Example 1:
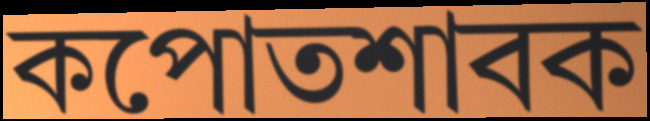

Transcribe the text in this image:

কপোতশাবক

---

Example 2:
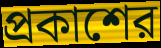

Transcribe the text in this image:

প্রকাশের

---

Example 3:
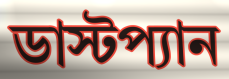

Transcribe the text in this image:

ডাস্টপ্যান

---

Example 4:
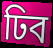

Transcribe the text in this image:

ঢিব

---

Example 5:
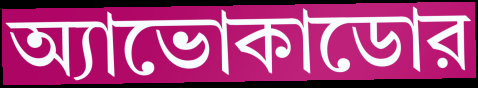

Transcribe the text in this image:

অ্যাভোকাডোর